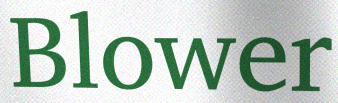
Blower